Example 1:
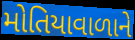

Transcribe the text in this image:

મોતિયાવાળાને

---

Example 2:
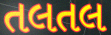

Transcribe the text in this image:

તલતલ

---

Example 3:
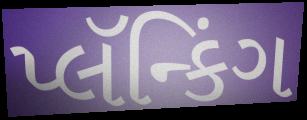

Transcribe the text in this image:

પ્લૅન્કિંગ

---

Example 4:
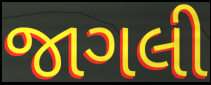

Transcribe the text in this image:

જાગલી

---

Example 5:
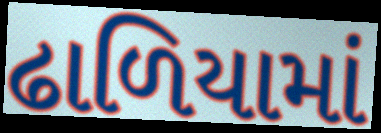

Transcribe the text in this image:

ઢાળિયામાં